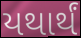
યથાર્થં